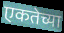
एकतेच्या